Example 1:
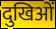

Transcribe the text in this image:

दुखिओं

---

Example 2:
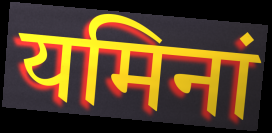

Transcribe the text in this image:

यमिनां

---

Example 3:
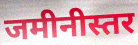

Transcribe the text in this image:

जमीनीस्तर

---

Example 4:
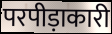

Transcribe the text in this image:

परपीड़ाकारी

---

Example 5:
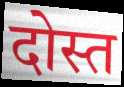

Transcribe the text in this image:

दोस्‍त